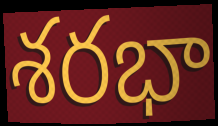
శరభా